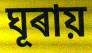
ঘূৰায়